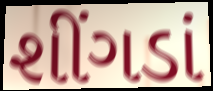
શીંગડાં